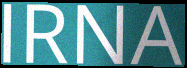
IRNA